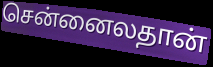
சென்னைலதான்